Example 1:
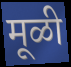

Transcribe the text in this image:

मूळी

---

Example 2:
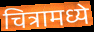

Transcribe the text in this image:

चित्रामध्ये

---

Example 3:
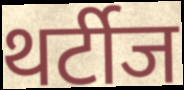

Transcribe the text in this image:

थर्टीज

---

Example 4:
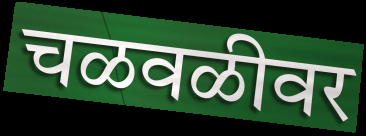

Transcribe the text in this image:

चळवळीवर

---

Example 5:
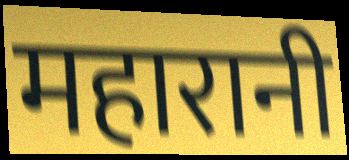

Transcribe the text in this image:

महारानी